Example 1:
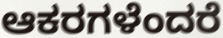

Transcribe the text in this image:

ಆಕರಗಳೆಂದರೆ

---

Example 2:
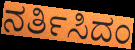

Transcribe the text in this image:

ನರ್ತಿಸಿದಂ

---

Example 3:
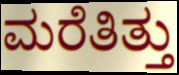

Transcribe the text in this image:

ಮರೆತಿತ್ತು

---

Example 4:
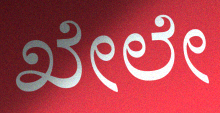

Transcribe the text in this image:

ಖೇಲೇ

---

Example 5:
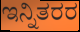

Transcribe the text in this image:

ಇನ್ನಿತರರ